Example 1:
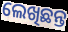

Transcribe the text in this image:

ଲେଖିଛନ୍ତ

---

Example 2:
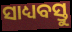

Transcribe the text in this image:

ସାଧ୍ୟବସ୍ତୁ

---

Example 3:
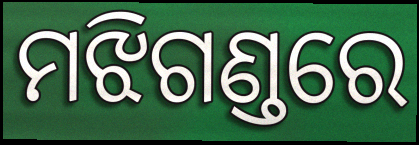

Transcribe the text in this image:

ମଝିଗଣ୍ଡରେ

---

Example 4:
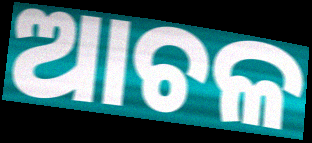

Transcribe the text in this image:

ଆଚଳ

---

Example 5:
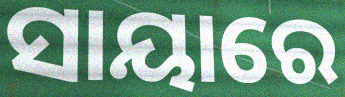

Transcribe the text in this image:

ସାୟାରେ